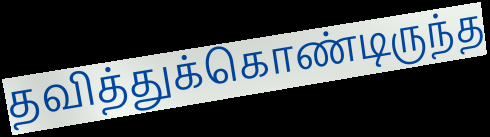
தவித்துக்கொண்டிருந்த